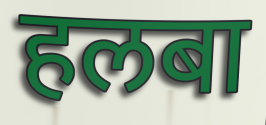
हलबा